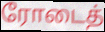
ரோடைத்